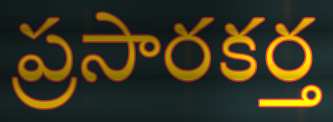
ప్రసారకర్త